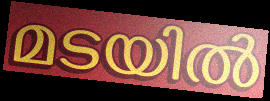
മടയിൽ